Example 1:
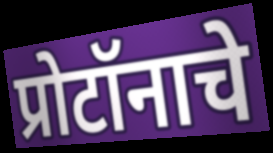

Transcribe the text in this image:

प्रोटॉनाचे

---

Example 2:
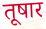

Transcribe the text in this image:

तूषार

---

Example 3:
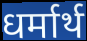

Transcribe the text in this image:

धर्मार्थ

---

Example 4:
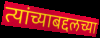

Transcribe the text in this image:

त्यांच्याबद्दलच्या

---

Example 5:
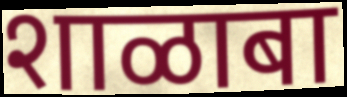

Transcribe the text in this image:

शाळाबा